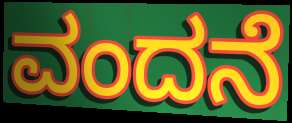
ವಂದನೆ